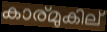
കാര്മുകില്